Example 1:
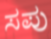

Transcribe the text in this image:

ಸಪು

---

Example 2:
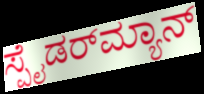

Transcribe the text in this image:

ಸ್ಪೈಡರ್‌ಮ್ಯಾನ್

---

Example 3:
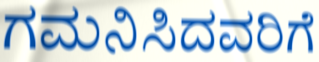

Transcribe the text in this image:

ಗಮನಿಸಿದವರಿಗೆ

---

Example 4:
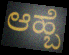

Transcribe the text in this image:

ಆಹ್ಬೆ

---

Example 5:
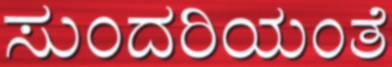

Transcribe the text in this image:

ಸುಂದರಿಯಂತೆ